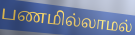
பணமில்லாமல்